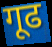
गूढ